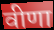
वीणा